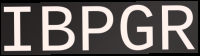
IBPGR